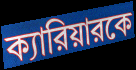
ক্যারিয়ারকে